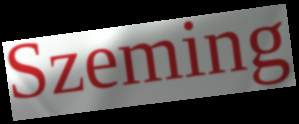
Szeming